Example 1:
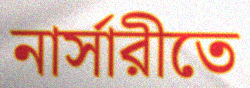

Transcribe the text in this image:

নার্সারীতে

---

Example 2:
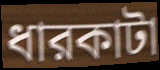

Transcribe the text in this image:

ধারকাটা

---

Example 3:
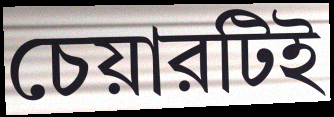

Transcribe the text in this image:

চেয়ারটিই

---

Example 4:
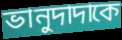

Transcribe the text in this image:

ভানুদাদাকে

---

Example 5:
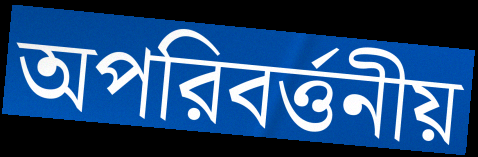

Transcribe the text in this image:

অপরিবর্ত্তনীয়